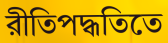
রীতিপদ্ধতিতে